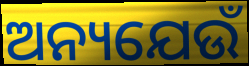
ଅନ୍ୟଯେଉଁ